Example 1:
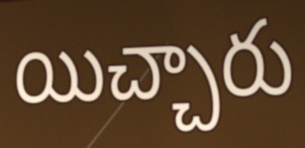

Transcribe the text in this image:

యిచ్చారు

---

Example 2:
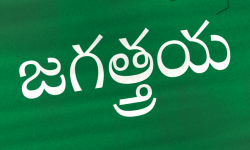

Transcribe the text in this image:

జగత్త్రయ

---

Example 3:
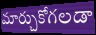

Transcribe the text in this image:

మార్చుకోగలడా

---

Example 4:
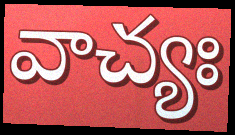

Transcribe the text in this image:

వాచ్యః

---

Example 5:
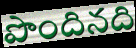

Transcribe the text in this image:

పొందినది